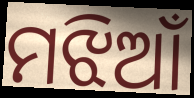
ମଝିଆଁ